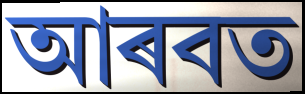
আৰবত